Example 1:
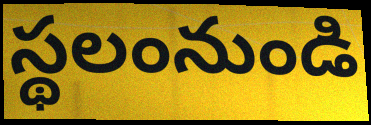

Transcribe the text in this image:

స్థలంనుండి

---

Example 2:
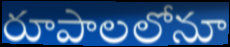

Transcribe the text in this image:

రూపాలలోనూ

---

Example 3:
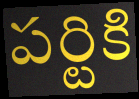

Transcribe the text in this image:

పర్టికి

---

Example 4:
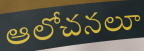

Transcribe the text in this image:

ఆలోచనలూ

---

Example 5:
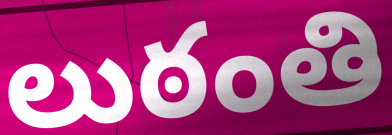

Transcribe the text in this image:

లుఠంతి